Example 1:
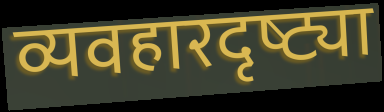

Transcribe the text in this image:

व्यवहारदृष्ट्या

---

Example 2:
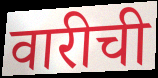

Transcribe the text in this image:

वारीची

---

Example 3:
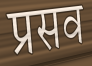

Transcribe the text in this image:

प्रसव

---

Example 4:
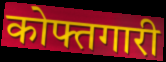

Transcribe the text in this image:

कोफ्तगारी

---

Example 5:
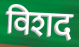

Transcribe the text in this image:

विशद